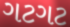
ગટગટ